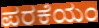
ಪರಕೆಯಂ